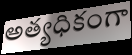
అత్యధికంగా